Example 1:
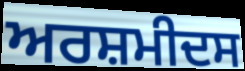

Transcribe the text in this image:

ਅਰਸ਼ਮੀਦਸ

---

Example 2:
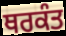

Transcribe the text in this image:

ਥਰਕੰਤ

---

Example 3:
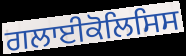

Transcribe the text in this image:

ਗਲਾਈਕੋਲਿਸਿਸ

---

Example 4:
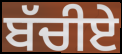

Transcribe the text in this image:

ਬੱਚੀਏ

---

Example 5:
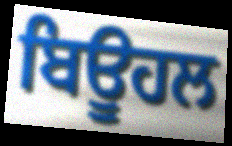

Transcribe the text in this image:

ਬਿਊਹਲ